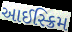
આઈસ્ક્રિમ